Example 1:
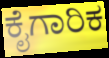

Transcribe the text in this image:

ಕೈಗಾರಿಕ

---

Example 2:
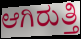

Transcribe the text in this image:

ಆಗಿರುತ್ತಿ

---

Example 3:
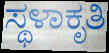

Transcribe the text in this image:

ಸ್ಥಳಾಕೃತಿ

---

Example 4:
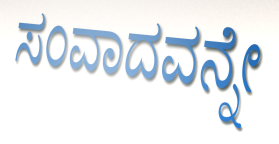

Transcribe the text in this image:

ಸಂವಾದವನ್ನೇ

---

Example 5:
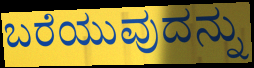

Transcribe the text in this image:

ಬರೆಯುವುದನ್ನು